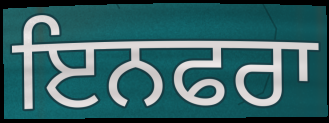
ਇਨਫਰਾ